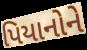
પિયાનોને